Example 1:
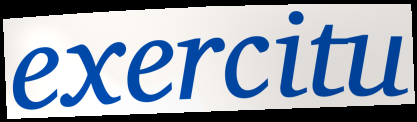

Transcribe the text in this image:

exercitu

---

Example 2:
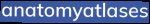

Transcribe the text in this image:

anatomyatlases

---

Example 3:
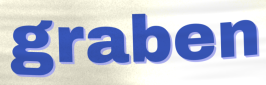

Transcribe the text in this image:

graben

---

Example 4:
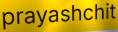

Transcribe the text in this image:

prayashchit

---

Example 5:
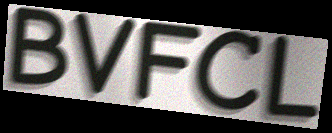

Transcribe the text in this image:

BVFCL